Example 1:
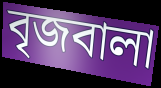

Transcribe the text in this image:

বৃজবালা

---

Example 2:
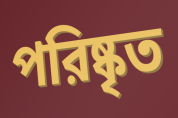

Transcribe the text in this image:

পরিষ্কৃত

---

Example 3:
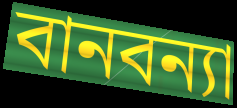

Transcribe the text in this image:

বানবন্যা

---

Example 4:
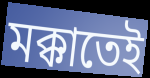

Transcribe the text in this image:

মক্কাতেই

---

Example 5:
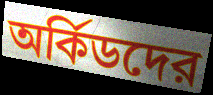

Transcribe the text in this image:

অর্কিডদের